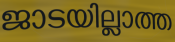
ജാടയില്ലാത്ത